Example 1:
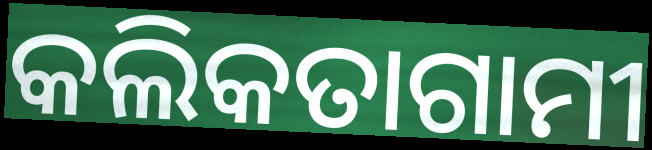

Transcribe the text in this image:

କଲିକତାଗାମୀ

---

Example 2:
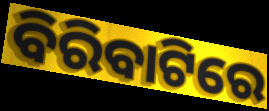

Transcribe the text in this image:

ବିରିବାଟିରେ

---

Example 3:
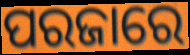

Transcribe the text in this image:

ପରଜାରେ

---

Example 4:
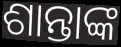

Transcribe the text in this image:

ଶାନ୍ତାଙ୍କ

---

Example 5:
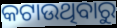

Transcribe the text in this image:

କଟାଉଥିବାରୁ